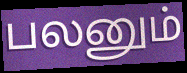
பலனும்